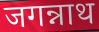
जगन्नाथ